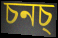
চনচ্